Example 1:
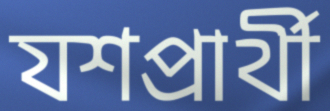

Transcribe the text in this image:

যশপ্রার্থী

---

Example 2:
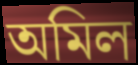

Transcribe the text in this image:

অমিল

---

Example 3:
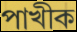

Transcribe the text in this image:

পাখীক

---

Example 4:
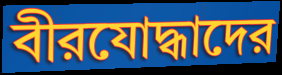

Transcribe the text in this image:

বীরযোদ্ধাদের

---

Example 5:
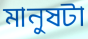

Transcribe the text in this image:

মানুষটা